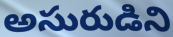
అసురుడిని